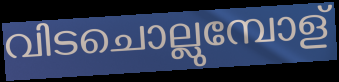
വിടചൊല്ലുമ്പോള്